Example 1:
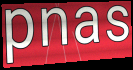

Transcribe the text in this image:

pnas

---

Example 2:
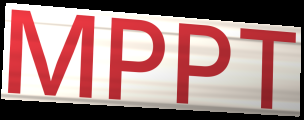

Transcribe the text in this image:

MPPT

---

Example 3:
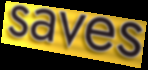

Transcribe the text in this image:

saves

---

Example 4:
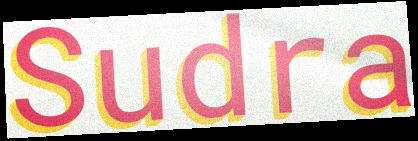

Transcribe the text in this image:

Sudra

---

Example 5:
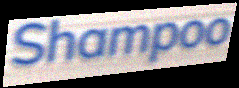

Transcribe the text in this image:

Shampoo